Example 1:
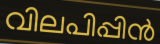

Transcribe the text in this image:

വിലപിപ്പിൻ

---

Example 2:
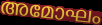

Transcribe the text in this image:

അമോഘം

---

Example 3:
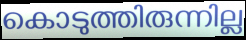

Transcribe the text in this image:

കൊടുത്തിരുന്നില്ല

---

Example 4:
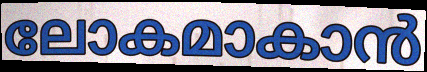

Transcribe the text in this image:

ലോകമാകാൻ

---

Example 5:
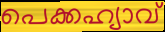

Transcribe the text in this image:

പെക്കഹ്യാവ്